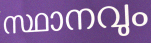
സ്ഥാനവും